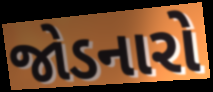
જોડનારો